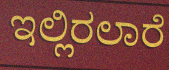
ಇಲ್ಲಿರಲಾರೆ